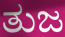
ತುಜ